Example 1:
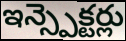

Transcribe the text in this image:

ఇన్స్పెక్టర్లు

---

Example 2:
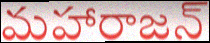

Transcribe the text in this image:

మహారాజన్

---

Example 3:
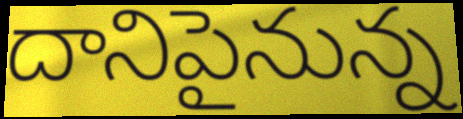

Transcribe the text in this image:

దానిపైనున్న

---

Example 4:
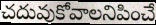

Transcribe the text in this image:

చదువుకోవాలనిపించే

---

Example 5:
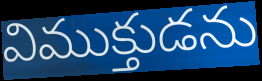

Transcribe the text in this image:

విముక్తుడను